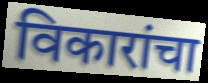
विकारांचा